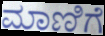
ಮಾಣಿಗೆ